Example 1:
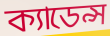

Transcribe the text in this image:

ক্যাডেন্স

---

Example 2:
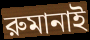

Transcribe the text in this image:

রুমানাই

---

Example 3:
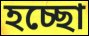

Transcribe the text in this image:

হচ্ছো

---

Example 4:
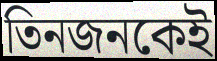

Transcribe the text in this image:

তিনজনকেই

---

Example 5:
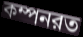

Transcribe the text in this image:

কম্পনরত